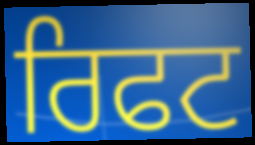
ਰਿਫਟ